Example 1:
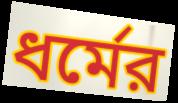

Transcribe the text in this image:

ধর্মের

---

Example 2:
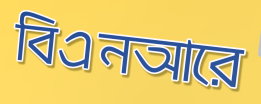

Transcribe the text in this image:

বিএনআরে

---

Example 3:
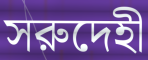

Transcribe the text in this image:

সরুদেহী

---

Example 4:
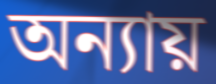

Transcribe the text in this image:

অন্যায়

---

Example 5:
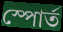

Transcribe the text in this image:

স্পোর্ত